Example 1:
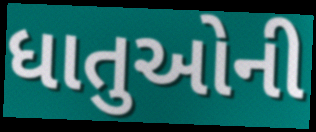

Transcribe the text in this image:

ધાતુઓની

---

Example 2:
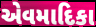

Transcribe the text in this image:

એવમાદિકા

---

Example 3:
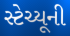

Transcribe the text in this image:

સ્ટેચ્યૂની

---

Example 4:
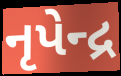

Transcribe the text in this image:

નૃપેન્દ્ર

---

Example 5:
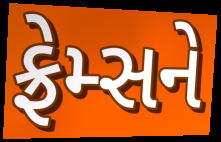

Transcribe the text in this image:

ફ્રેમ્સને